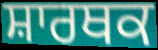
ਸ਼ਾਰਥਕ